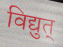
विद्युत्